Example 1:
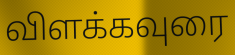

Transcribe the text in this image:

விளக்கவுரை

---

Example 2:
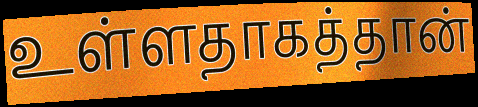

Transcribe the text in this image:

உள்ளதாகத்தான்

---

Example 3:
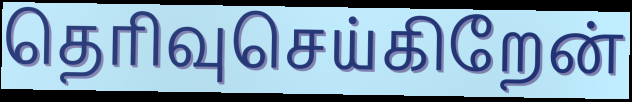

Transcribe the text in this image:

தெரிவுசெய்கிறேன்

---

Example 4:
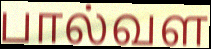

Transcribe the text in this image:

பால்வள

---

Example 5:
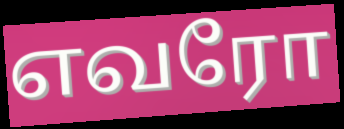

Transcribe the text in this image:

எவரோ